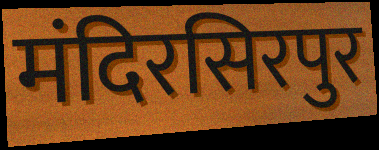
मंदिरसिरपुर